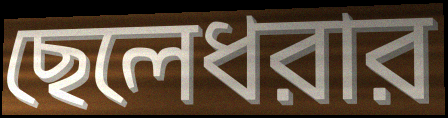
ছেলেধরার